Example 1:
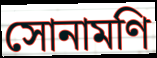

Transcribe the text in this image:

সোনামণি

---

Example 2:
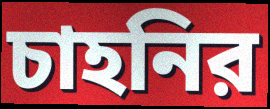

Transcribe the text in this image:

চাহনির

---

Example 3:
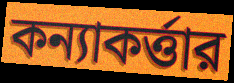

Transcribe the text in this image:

কন্যাকর্ত্তার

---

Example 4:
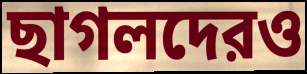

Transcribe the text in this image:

ছাগলদেরও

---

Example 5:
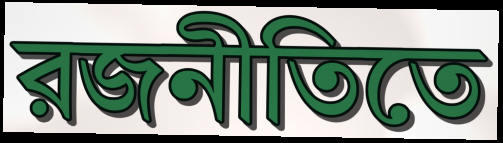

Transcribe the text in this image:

রজনীতিতে